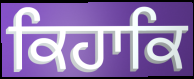
ਕਿਹਾਕਿ